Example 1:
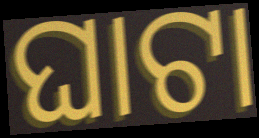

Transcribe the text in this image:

ଘାଟା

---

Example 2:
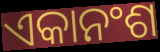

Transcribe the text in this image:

ଏକାନଂଶ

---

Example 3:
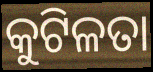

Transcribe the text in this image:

କୁଟିଳତା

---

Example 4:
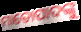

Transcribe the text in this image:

ମାତୋପାଦଙ୍କୁ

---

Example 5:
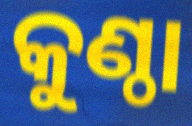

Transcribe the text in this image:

କୁଣ୍ଠା